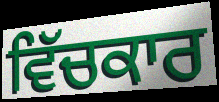
ਵਿੱਚਕਾਰ